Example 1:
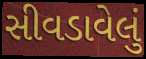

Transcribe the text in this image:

સીવડાવેલું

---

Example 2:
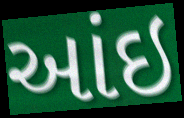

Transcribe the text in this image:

આંઇ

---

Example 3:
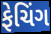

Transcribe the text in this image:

ફેચિંગ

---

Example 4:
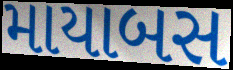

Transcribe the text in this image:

માયાબસ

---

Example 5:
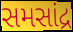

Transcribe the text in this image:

સમસાંદ્ર